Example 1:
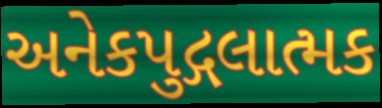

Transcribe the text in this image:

અનેકપુદ્ગલાત્મક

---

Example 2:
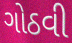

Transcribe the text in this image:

ગોઠવી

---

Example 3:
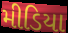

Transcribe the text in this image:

મીડિયા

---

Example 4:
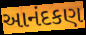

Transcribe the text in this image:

આનંદકણ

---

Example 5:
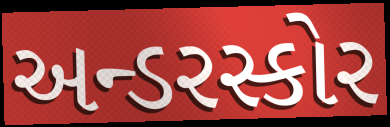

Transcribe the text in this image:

અન્ડરસ્કોર